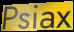
Psiax